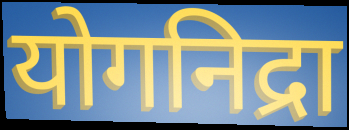
योगनिद्रा